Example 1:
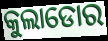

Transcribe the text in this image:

କୁଲାଡୋର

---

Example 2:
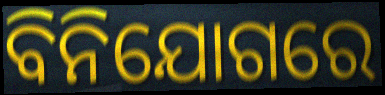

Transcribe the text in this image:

ବିନିଯୋଗରେ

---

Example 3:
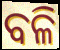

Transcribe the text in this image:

ବଳି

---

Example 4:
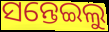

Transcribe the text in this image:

ସନ୍ତେଇଲୁ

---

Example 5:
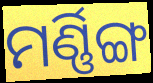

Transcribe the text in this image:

ମର୍ଣ୍ଣିଙ୍ଗ